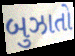
બુઝાતો